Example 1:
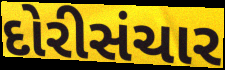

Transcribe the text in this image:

દોરીસંચાર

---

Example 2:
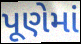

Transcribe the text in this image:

પૂણેમાં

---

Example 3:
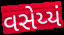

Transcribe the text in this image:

વસેય્યં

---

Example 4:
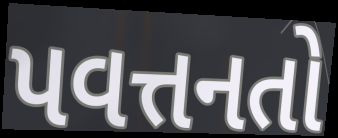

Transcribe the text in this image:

પવત્તનતો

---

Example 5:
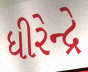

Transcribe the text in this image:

ધીરેન્દ્રે